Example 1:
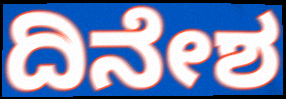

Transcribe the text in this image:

ದಿನೇಶ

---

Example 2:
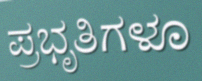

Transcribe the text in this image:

ಪ್ರಭೃತಿಗಳೂ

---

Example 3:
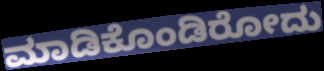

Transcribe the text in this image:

ಮಾಡಿಕೊಂಡಿರೋದು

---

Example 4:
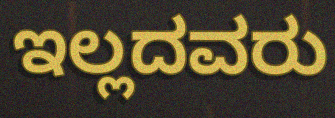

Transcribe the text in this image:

ಇಲ್ಲದವರು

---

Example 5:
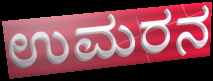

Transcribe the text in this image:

ಉಮರನ